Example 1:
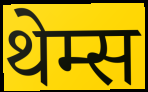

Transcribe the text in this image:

थेम्स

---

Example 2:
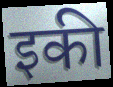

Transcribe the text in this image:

इकी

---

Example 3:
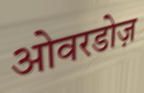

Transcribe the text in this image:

ओवरडोज़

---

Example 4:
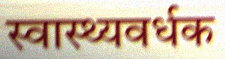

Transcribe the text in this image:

स्वास्थ्यवर्धक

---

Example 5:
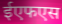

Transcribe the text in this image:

ईएफएस